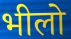
भीलो